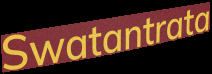
Swatantrata